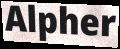
Alpher